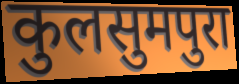
कुलसुमपुरा